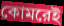
কোমরেই